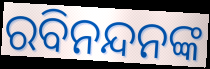
ରବିନନ୍ଦନଙ୍କ